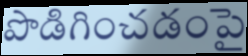
పొడిగించడంపై